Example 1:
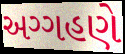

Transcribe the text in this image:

અગ્ગહણે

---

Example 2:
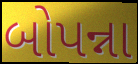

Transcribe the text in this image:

બોપન્ના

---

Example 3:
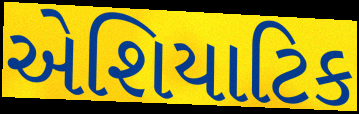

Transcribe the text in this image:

એશિયાટિક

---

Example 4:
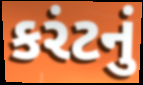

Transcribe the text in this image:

કરંટનું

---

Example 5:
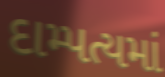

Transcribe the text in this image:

દામ્પત્યમાં